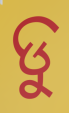
ଡୁ